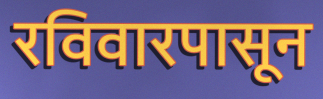
रविवारपासून